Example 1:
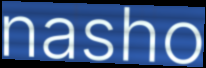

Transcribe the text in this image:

nasho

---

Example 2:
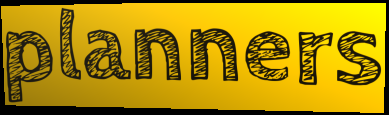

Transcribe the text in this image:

planners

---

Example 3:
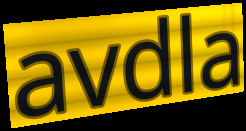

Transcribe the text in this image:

avdla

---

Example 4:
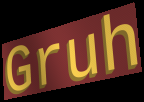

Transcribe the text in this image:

Gruh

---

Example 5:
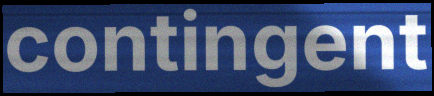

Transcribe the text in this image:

contingent